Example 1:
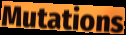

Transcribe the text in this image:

Mutations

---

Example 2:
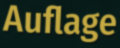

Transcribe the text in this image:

Auflage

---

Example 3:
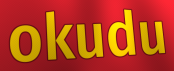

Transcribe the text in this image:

okudu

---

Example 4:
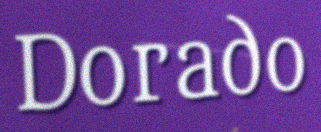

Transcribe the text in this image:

Dorado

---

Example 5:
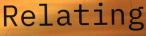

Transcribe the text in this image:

Relating